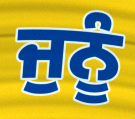
ਜੁਨੂੰ